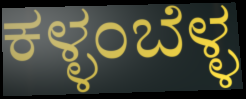
ಕಳ್ಳಂಬೆಳ್ಳ